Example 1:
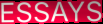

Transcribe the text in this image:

ESSAYS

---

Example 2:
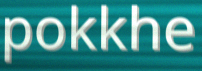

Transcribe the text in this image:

pokkhe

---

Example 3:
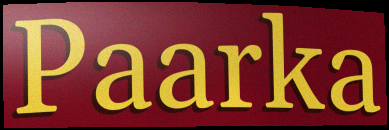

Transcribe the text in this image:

Paarka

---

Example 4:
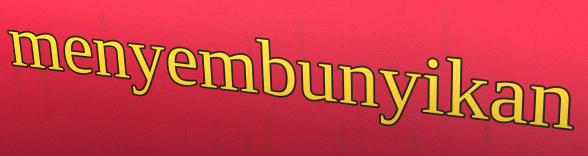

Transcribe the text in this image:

menyembunyikan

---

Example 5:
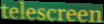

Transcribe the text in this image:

telescreen